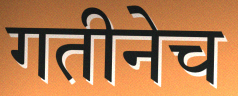
गतीनेच